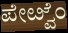
ಪೇೞ್ವೆಂ